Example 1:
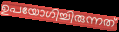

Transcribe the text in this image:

ഉപയോഗിച്ചിരുന്നത്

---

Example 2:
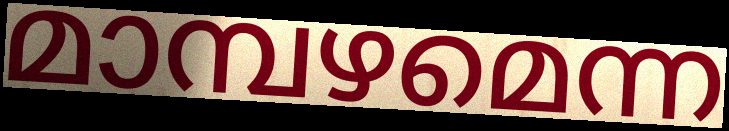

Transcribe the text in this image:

മാമ്പഴമെന്ന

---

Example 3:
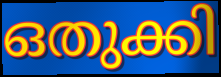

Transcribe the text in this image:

ഒതുക്കി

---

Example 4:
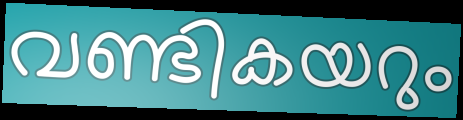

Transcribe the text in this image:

വണ്ടികയറും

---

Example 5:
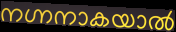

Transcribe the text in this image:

നഗ്നനാകയാൽ